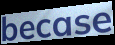
becase